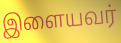
இளையவர்